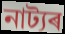
নাট্যৰ